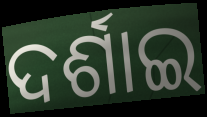
ଦର୍ଶାଇ